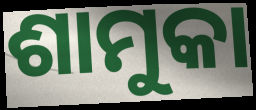
ଶାମୁକା